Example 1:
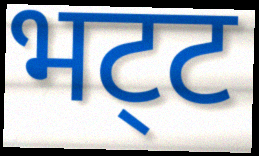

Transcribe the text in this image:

भट्‌ट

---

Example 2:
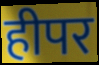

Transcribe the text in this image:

हीपर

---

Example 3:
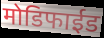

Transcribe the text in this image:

मोडिफाईड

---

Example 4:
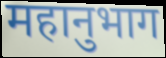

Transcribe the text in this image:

महानुभाग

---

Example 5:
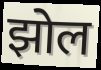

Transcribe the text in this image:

झोल